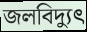
জলবিদ্যুৎ